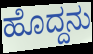
ಹೊದ್ದನು